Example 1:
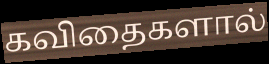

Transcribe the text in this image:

கவிதைகளால்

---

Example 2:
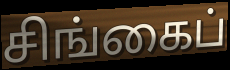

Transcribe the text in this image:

சிங்கைப்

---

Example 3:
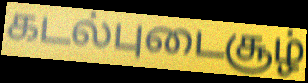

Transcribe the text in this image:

கடல்புடைசூழ்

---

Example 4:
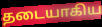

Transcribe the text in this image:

தடையாகிய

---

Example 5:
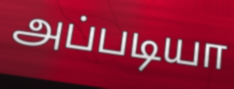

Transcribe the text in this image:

அப்படியா